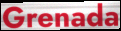
Grenada